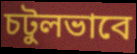
চটুলভাবে